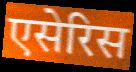
एसेरिस